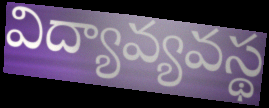
విద్యావ్యవస్థ